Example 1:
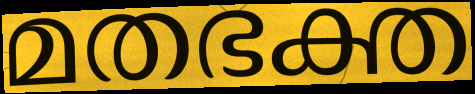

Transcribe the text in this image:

മതഭക്ത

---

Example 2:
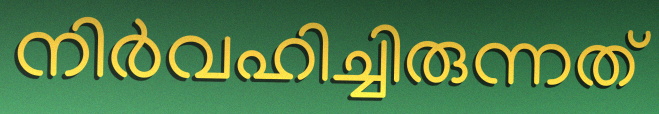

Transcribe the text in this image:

നിർവഹിച്ചിരുന്നത്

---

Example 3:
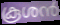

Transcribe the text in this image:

കൂശൻ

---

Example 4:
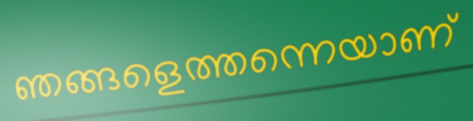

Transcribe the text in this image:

ഞങ്ങളെത്തന്നെയാണ്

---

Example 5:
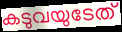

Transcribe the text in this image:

കടുവയുടേത്